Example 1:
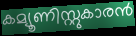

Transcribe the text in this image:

കമ്യൂണിസ്റ്റുകാരൻ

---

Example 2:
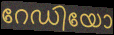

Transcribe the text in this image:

റേഡിയോ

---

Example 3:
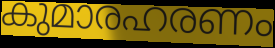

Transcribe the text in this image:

കുമാരഹരണം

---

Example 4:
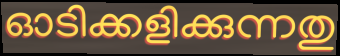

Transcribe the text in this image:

ഓടിക്കളിക്കുന്നതു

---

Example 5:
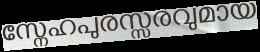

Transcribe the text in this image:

സ്നേഹപുരസ്സരവുമായ